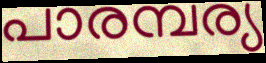
പാരമ്പര്യ